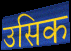
उसिक